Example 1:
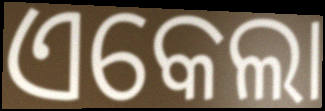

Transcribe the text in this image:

ଏକେଲା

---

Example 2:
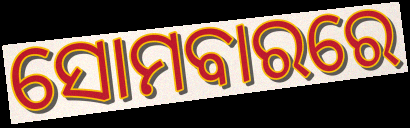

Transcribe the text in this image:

ସୋମବାରରେ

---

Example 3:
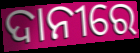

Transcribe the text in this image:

ଦାନୀରେ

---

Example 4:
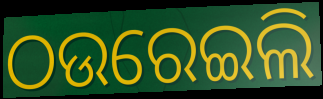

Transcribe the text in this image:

ଠଉରେଇଲି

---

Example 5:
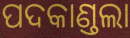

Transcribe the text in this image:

ପଦକାଣ୍ଡଲା